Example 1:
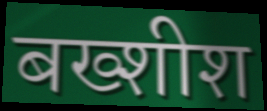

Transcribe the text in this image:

बख्शीश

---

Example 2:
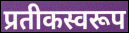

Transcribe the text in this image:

प्रतीकस्वरूप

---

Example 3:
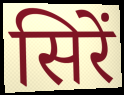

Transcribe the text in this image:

सिरें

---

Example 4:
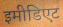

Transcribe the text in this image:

इमीडिएट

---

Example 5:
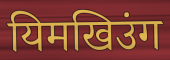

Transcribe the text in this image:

यिमखिउंग